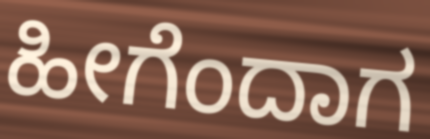
ಹೀಗೆಂದಾಗ